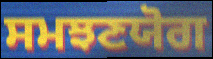
ਸਮਝਣਯੋਗ